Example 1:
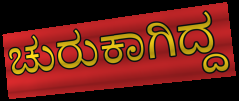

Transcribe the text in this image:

ಚುರುಕಾಗಿದ್ದ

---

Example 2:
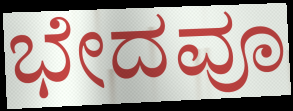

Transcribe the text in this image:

ಭೇದವೂ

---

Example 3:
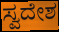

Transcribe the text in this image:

ಸ್ವದೇಶ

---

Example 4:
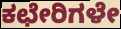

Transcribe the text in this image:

ಕಛೇರಿಗಳೇ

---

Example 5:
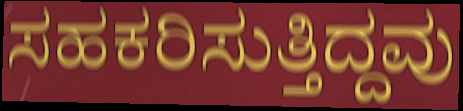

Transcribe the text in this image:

ಸಹಕರಿಸುತ್ತಿದ್ದವು